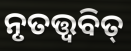
ନୃତତ୍ତ୍ୱବିତ୍